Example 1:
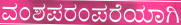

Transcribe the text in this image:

ವಂಶಪರಂಪರೆಯಾಗಿ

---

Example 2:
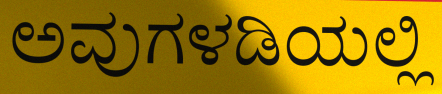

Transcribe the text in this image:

ಅವುಗಳಡಿಯಲ್ಲಿ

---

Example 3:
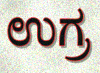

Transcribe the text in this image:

ಉಗ್ರ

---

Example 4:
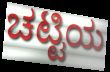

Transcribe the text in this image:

ಚಟ್ಟಿಯ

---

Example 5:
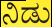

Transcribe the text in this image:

ನಿಡು